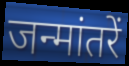
जन्मांतरें